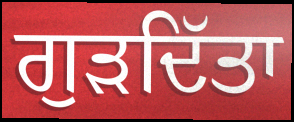
ਗੁੜਦਿੱਤਾ